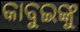
କାବୁଇଙ୍କୁ